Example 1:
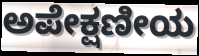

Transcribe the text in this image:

ಅಪೇಕ್ಷಣೀಯ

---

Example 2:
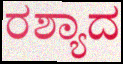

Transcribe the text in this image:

ರಶ್ಯಾದ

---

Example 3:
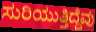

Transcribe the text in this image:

ಸುರಿಯುತ್ತಿದ್ದೆವು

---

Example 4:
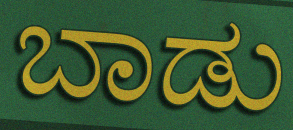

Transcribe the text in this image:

ಬಾಡು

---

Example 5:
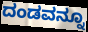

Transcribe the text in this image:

ದಂಡವನ್ನೂ